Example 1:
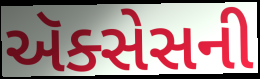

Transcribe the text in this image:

ઍક્સેસની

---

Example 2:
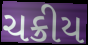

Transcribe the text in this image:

ચક્રીય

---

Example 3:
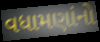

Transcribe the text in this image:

વધામણાંનો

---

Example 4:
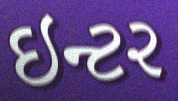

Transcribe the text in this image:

ઇન્ટર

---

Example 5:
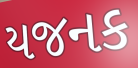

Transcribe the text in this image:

યજનક